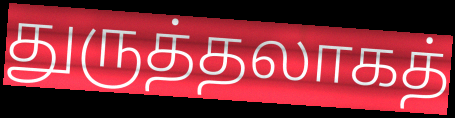
துருத்தலாகத்